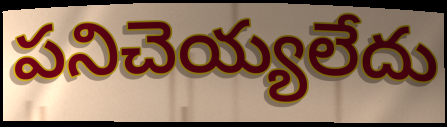
పనిచెయ్యలేదు